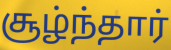
சூழ்ந்தார்